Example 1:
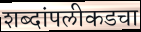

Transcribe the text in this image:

शब्दांपलीकडचा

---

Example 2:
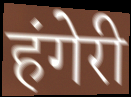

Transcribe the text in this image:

हंगेरी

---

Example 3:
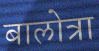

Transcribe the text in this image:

बालोत्रा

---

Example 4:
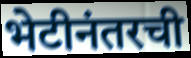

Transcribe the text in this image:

भेटीनंतरची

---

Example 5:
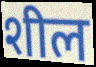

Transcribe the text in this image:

शील